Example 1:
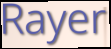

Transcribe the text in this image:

Rayer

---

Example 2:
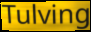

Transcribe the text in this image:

Tulving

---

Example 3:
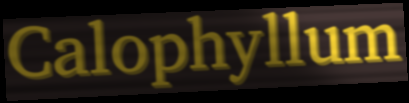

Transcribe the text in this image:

Calophyllum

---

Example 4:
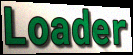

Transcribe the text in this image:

Loader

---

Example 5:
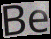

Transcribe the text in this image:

Be